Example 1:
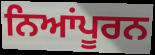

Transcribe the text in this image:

ਨਿਆਂਪੂਰਨ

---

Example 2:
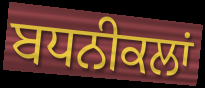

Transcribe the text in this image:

ਬਧਨੀਕਲਾਂ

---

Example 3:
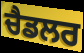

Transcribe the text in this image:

ਚੈਡਲਰ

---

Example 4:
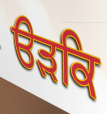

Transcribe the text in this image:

ੳੜਕਿ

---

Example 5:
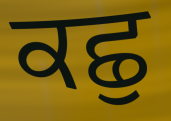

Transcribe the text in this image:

ਕਛੁ